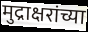
मुद्राक्षरांच्या